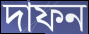
দাফন